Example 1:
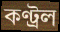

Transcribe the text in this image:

কণ্ট্ৰল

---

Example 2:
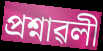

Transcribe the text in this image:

প্ৰশ্নাৱলী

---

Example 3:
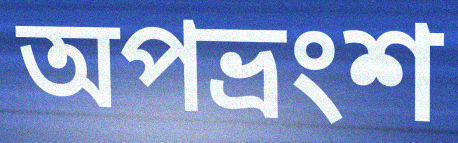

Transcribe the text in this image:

অপভ্ৰংশ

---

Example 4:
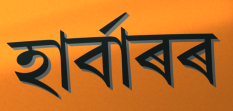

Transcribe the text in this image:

হাৰ্বাৰৰ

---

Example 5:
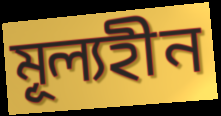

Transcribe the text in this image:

মূল্যহীন